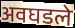
अवघडले